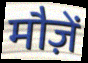
मौज़ें